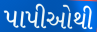
પાપીઓથી